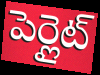
పెర్లైట్